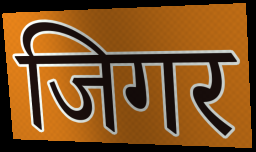
जिगर